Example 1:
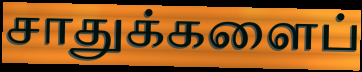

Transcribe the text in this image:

சாதுக்களைப்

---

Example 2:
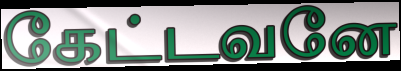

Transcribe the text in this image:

கேட்டவனே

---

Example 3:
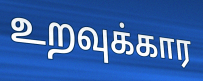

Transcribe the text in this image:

உறவுக்கார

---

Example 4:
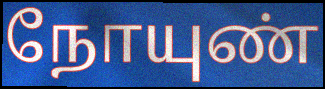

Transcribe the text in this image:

நோயுண்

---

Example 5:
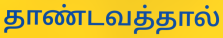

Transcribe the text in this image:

தாண்டவத்தால்